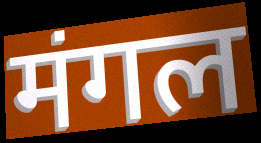
मंगल